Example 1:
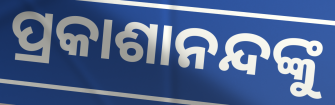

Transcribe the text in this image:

ପ୍ରକାଶାନନ୍ଦଙ୍କୁ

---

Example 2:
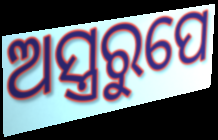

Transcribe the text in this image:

ଅସ୍ତ୍ରରୁପେ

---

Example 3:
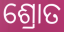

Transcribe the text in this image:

ଶ୍ରୋତ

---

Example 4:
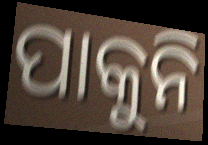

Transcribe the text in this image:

ପାକୁନି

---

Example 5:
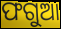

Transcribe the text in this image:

ଫଗୁଆ